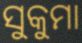
ସୁକୁମା